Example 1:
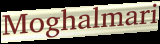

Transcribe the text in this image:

Moghalmari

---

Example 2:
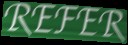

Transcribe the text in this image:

REFER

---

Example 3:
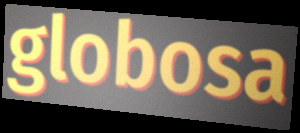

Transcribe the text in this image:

globosa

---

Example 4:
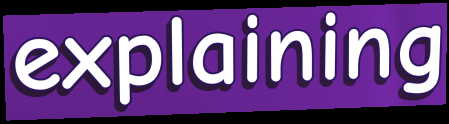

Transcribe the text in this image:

explaining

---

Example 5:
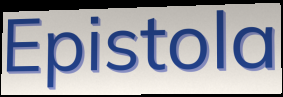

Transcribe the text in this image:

Epistola